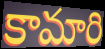
కామారి